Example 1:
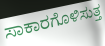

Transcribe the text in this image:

ಸಾಕಾರಗೊಳಿಸುತ್ತ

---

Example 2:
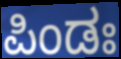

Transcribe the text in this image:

ಪಿಂಡಃ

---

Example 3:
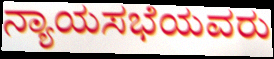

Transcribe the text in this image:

ನ್ಯಾಯಸಭೆಯವರು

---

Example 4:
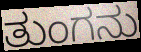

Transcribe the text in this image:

ತುಂಗನು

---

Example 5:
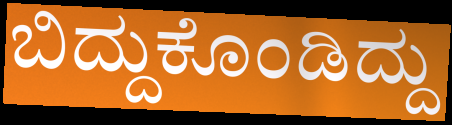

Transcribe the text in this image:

ಬಿದ್ದುಕೊಂಡಿದ್ದು